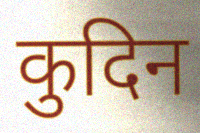
कुदिन